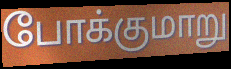
போக்குமாறு